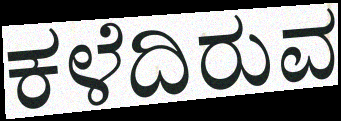
ಕಳೆದಿರುವ